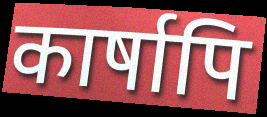
कार्षापि